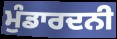
ਮੁੰਡਾਰਦਨੀ